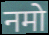
नमो